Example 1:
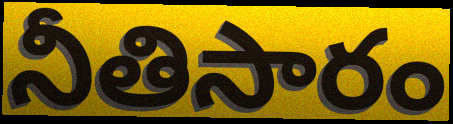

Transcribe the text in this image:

నీతిసారం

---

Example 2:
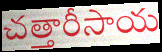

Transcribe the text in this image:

చత్తారీసాయ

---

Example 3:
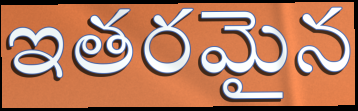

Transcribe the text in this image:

ఇతరమైన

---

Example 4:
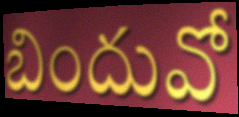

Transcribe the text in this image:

బిందువో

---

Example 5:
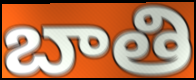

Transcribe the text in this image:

బాతి